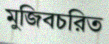
মুজিবচরিত